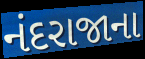
નંદરાજાના